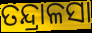
ତନ୍ଦ୍ରାଳସା